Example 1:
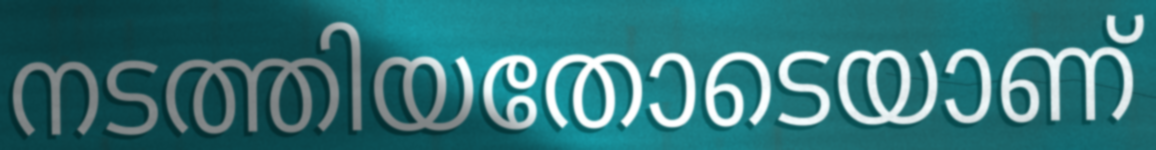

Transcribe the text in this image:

നടത്തിയതോടെയാണ്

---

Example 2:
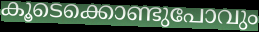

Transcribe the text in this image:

കൂടെക്കൊണ്ടുപോവും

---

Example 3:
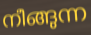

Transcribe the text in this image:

നീങ്ങുന്ന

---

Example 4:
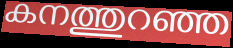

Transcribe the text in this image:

കനത്തുറഞ്ഞ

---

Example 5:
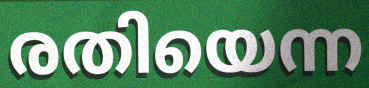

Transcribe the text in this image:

രതിയെന്ന